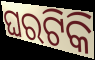
ଘରଟିକି